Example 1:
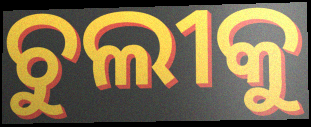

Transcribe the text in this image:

ଚୁଲୀକୁ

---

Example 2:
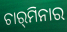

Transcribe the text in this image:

ଚାର୍‌ମିନାର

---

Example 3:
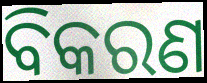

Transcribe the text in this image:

ବିକରଣ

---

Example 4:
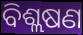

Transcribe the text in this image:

ବିଶ୍ଲଷଣ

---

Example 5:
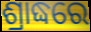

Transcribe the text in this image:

ଶ୍ରାଦ୍ଧରେ